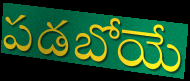
పడబోయే